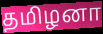
தமிழனா